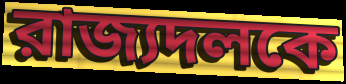
রাজ্যদলকে